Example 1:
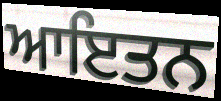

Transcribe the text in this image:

ਆਇਤਨ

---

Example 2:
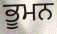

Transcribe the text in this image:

ਭੂਮਨ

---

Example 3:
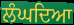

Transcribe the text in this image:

ਲੰਘਦਿਆ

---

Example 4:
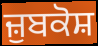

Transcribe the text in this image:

ਜ਼ੁਬਕੋਸ਼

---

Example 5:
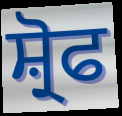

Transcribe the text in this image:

ਸ਼੍ਰੋਫ